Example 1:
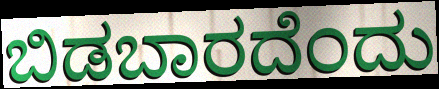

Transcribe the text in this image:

ಬಿಡಬಾರದೆಂದು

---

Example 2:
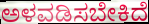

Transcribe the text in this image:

ಅಳವಡಿಸಬೇಕಿದೆ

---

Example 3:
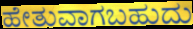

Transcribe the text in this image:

ಹೇತುವಾಗಬಹುದು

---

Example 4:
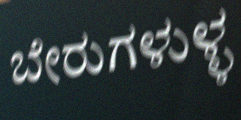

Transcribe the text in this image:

ಬೇರುಗಳುಳ್ಳ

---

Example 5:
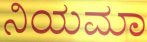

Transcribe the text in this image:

ನಿಯಮಾ